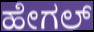
ಹೇಗಲ್